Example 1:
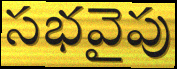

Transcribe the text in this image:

సభవైపు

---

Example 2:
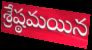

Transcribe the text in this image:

శ్రేష్ఠమయిన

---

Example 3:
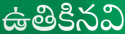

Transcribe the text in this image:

ఉతికినవి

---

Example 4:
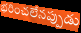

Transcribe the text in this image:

భరించలేనప్పుడు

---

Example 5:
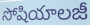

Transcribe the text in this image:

సోషియాలజీ